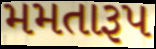
મમતારૂપ